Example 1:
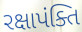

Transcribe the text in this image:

રક્ષાપંક્તિ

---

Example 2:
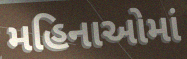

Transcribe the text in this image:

મહિનાઓમાં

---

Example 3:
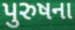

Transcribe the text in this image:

પુરુષના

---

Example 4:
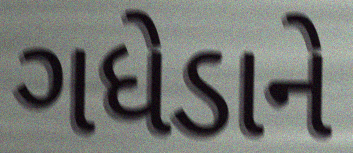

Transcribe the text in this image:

ગધેડાને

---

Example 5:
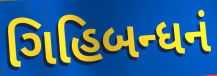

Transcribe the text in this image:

ગિહિબન્ધનં